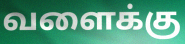
வளைக்கு